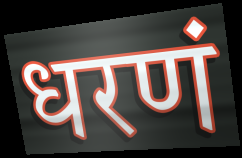
धरणं